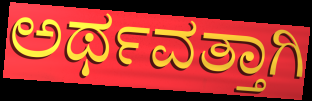
ಅರ್ಥವತ್ತಾಗಿ